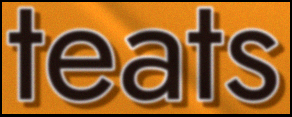
teats